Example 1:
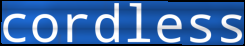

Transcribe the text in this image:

cordless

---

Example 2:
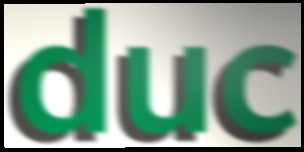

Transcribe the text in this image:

duc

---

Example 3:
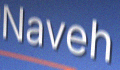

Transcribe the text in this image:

Naveh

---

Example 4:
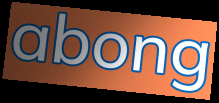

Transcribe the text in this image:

abong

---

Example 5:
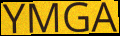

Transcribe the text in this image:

YMGA